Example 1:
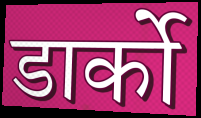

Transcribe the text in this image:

डार्को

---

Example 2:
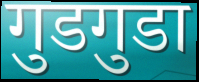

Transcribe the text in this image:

गुडगुडा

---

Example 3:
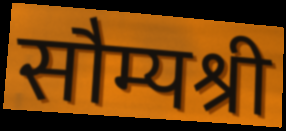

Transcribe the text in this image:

सौम्यश्री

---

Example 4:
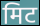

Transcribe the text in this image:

मिट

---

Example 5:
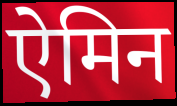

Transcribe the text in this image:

ऐमिन